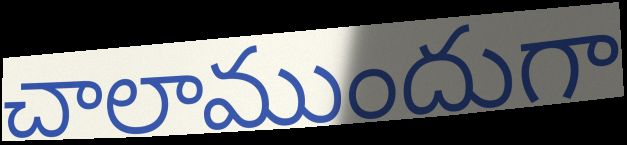
చాలాముందుగా